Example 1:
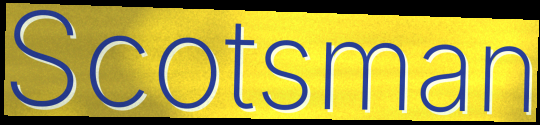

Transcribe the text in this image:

Scotsman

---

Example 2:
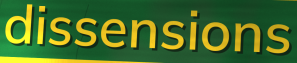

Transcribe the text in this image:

dissensions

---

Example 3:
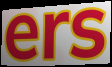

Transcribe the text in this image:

ers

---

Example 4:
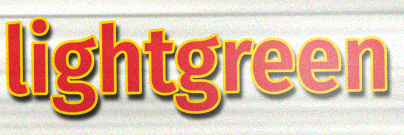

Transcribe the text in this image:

lightgreen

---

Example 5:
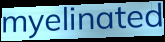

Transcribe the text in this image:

myelinated